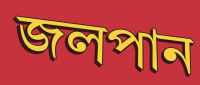
জলপান